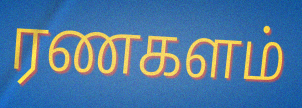
ரணகளம்